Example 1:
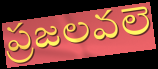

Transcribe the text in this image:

ప్రజలవలె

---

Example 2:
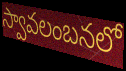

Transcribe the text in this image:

స్వావలంబనలో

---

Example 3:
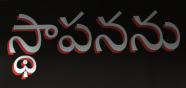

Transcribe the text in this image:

స్థాపనను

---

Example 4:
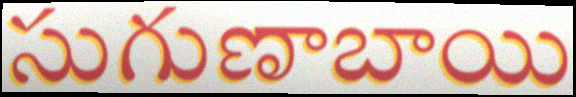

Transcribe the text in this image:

సుగుణాబాయి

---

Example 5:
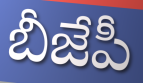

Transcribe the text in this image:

బీజేపీ